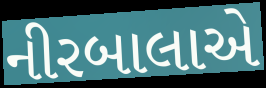
નીરબાલાએ